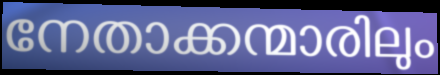
നേതാക്കന്മാരിലും